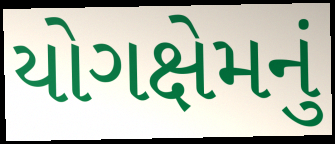
યોગક્ષેમનું